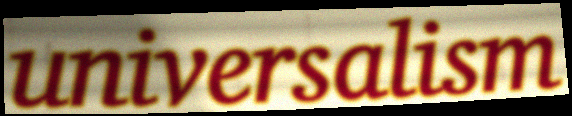
universalism